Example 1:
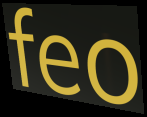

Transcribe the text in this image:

feo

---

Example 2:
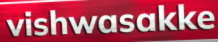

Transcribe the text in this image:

vishwasakke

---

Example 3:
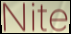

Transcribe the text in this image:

Nite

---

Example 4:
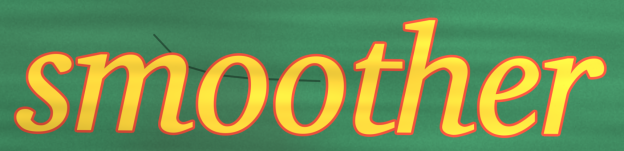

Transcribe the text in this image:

smoother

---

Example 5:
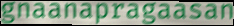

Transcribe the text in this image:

gnaanapragaasan